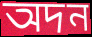
অদন